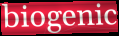
biogenic